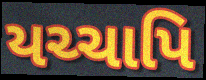
યચ્ચાપિ